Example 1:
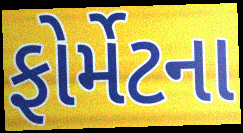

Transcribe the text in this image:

ફોર્મેટના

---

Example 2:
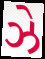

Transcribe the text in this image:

ઝે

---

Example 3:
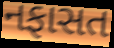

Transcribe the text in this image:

નફાસત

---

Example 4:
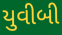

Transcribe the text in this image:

યુવીબી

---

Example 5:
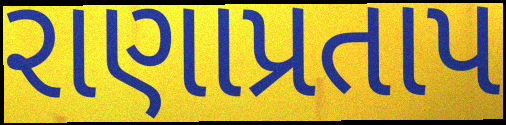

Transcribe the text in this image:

રાણાપ્રતાપ